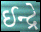
ઈન્દ્રે